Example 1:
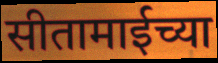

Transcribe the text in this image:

सीतामाईच्या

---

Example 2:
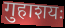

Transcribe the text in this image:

गुहाशयः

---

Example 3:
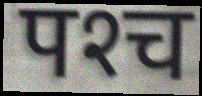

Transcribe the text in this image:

पश्च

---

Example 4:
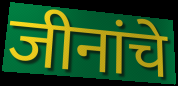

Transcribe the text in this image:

जीनांचे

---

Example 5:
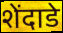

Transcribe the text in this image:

शेंदाडे